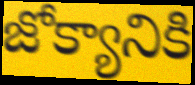
జోక్యానికి